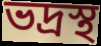
ভদ্রস্থ